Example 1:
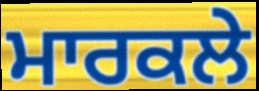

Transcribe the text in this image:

ਮਾਰਕਲੇ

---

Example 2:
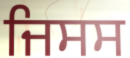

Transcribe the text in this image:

ਜਿਸਸ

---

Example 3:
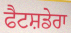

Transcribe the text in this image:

ਫੈਟਸ਼ਡੇਰਾ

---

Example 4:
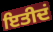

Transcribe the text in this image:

ਇਤੀਦਂ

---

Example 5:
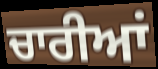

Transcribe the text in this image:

ਚਾਰੀਆਂ